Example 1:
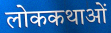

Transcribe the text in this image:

लोककथाओं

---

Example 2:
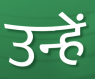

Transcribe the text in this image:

उन्‍हें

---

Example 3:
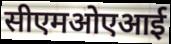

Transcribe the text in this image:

सीएमओएआई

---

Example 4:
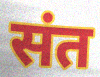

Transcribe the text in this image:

संत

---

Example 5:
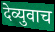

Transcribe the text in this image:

देव्युवाच